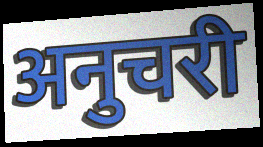
अनुचरी